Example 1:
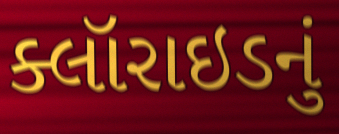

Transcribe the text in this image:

ક્લૉરાઇડનું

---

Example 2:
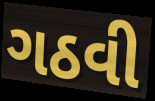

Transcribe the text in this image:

ગઠવી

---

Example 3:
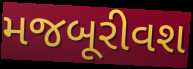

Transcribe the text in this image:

મજબૂરીવશ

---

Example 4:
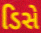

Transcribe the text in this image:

ડિસે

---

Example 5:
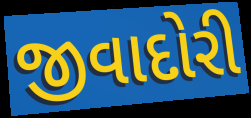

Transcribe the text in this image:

જીવાદોરી